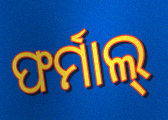
ଫର୍ମାଲ୍